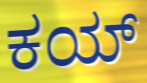
ಕಯ್